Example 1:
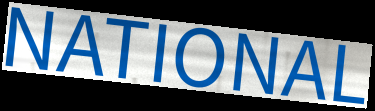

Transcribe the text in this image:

NATIONAL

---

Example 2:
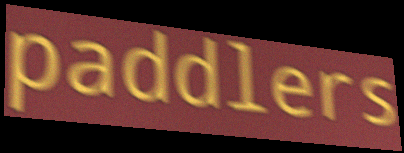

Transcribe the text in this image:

paddlers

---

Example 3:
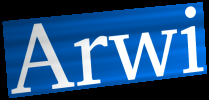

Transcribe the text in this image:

Arwi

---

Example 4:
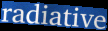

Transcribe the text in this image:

radiative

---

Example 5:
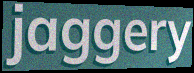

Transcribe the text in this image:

jaggery